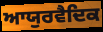
ਆਯੁਰਵੈਦਿਕ